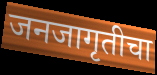
जनजागृतीचा